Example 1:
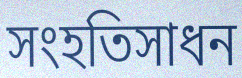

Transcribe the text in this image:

সংহতিসাধন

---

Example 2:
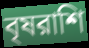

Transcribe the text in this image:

বৃষরাশি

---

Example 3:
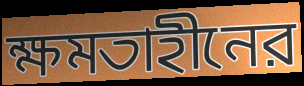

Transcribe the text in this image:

ক্ষমতাহীনের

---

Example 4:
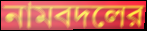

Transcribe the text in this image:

নামবদলের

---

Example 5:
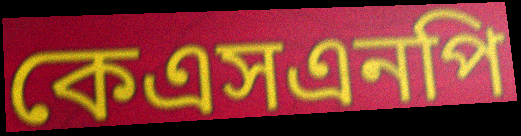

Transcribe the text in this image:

কেএসএনপি